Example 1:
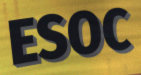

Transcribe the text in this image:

ESOC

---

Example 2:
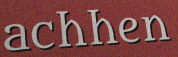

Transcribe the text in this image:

achhen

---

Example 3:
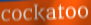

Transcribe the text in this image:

cockatoo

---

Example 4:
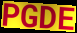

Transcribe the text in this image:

PGDE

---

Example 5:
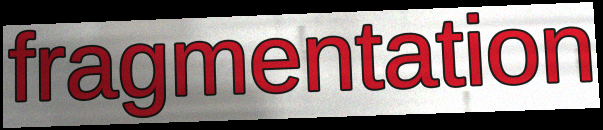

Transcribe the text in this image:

fragmentation